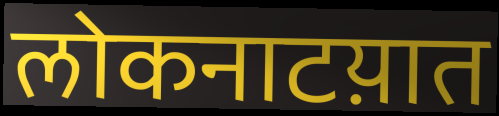
लोकनाटय़ात